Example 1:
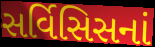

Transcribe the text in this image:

સર્વિસિસનાં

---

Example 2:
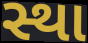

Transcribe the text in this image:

સ્થા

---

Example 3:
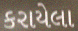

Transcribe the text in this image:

કરાયેલા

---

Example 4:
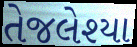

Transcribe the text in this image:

તેજલેશ્યા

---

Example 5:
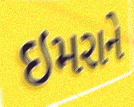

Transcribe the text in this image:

ઇમરાને